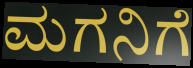
ಮಗನಿಗೆ